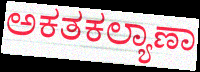
ಅಕತಕಲ್ಯಾಣಾ